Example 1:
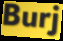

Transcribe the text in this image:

Burj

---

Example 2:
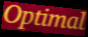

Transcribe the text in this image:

Optimal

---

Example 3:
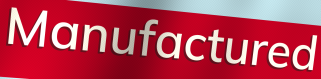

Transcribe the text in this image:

Manufactured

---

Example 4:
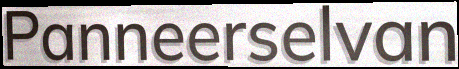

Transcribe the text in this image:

Panneerselvan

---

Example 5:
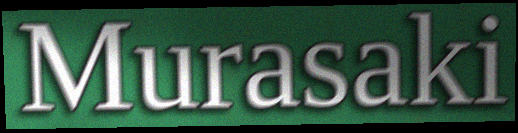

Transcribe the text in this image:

Murasaki